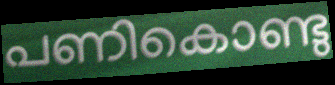
പണികൊണ്ടു